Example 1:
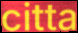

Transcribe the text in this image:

citta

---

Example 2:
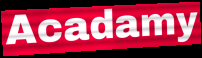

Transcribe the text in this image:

Acadamy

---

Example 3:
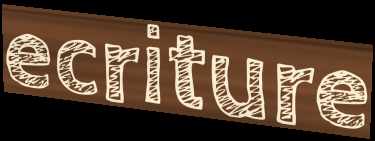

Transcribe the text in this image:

ecriture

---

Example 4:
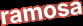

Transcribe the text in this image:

ramosa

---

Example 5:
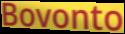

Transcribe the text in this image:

Bovonto